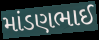
માંડણભાઈ